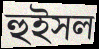
হুইসল